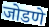
जोडणे